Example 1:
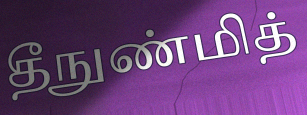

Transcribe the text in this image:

தீநுண்மித்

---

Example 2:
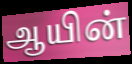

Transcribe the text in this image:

ஆயின்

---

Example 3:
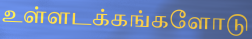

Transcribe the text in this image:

உள்ளடக்கங்களோடு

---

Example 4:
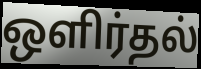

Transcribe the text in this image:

ஒளிர்தல்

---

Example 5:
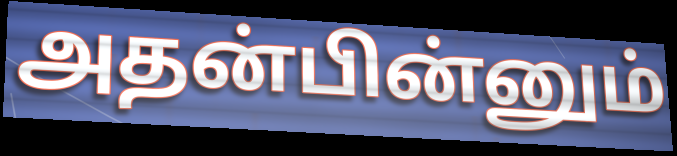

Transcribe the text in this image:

அதன்பின்னும்